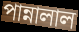
পান্নালাল